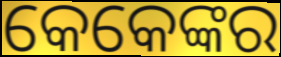
କେକେଙ୍କର